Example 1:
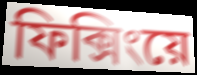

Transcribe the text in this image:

ফিক্সিংয়ে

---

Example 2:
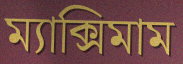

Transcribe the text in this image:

ম্যাক্সিমাম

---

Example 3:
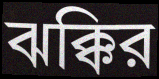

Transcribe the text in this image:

ঝক্কির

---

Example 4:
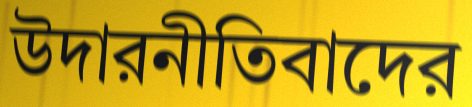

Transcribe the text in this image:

উদারনীতিবাদের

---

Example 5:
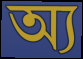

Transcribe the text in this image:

অ্য